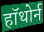
हॉथोर्न